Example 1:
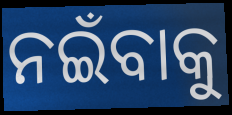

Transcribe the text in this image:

ନଇଁବାକୁ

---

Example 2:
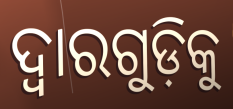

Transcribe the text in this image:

ଦ୍ୱାରଗୁଡ଼ିକୁ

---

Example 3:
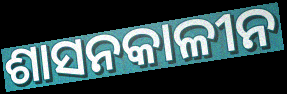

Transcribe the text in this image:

ଶାସନକାଳୀନ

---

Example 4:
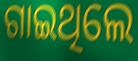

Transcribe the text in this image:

ଗାଇଥିଲେ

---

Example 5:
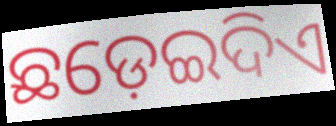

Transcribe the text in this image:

ଛଡ଼େଇଦିଏ